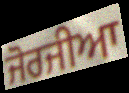
ਜੋਰਜੀਆ